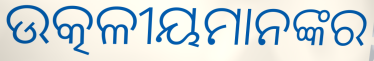
ଉତ୍କଳୀୟମାନଙ୍କର